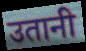
उतानी